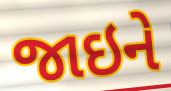
જાઇને